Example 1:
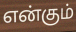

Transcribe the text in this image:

என்கும்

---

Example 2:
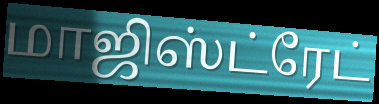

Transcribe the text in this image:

மாஜிஸ்ட்ரேட்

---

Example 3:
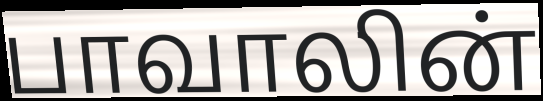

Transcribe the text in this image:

பாவாலின்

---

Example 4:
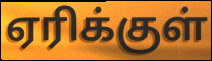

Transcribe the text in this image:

ஏரிக்குள்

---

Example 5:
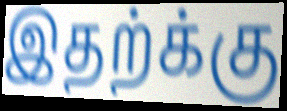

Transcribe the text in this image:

இதற்க்கு